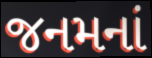
જનમનાં